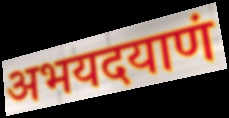
अभयदयाणं